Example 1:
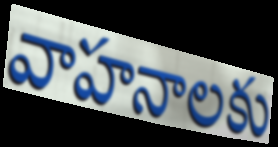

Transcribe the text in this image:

వాహనాలకు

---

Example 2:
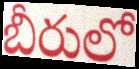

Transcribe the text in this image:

బీరులో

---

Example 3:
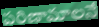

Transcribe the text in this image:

పరిణామాలనే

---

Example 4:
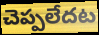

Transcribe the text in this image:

చెప్పలేదట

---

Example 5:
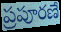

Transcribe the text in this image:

ప్రపూరణే